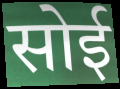
सोई